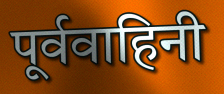
पूर्ववाहिनी